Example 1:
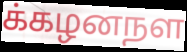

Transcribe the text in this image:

க்கழனநள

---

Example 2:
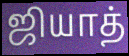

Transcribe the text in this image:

ஜியாத்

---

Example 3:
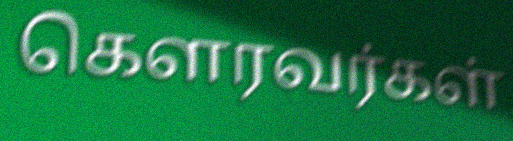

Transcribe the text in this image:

கெளரவர்கள்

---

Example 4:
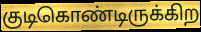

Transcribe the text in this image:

குடிகொண்டிருக்கிற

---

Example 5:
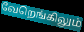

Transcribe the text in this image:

வேறெங்கிலும்